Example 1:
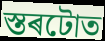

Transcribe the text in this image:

স্তৰটোত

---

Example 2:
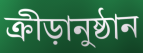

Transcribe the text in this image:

ক্ৰীড়ানুষ্ঠান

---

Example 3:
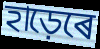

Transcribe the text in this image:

হাড়েৰে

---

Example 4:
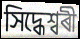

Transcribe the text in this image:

সিদ্ধেশ্বৰী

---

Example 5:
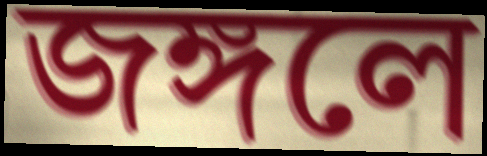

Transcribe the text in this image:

জঙ্গলে